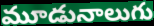
మూడునాలుగు